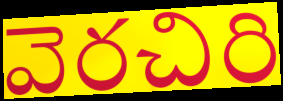
వెరచిరి